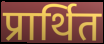
प्रार्थित